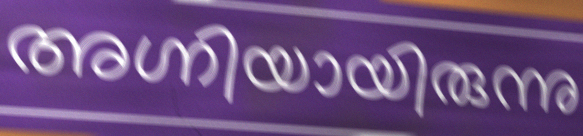
അഗ്നിയായിരുന്നു